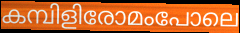
കമ്പിളിരോമംപോലെ